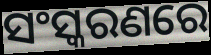
ସଂସ୍କରଣରେ